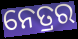
ନେତ୍ରର